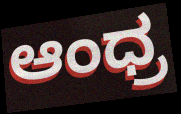
ಆಂಧ್ರ